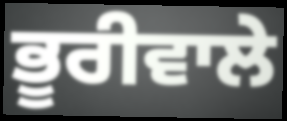
ਭੂਰੀਵਾਲੇ